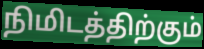
நிமிடத்திற்கும்